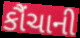
કૌંચાની